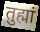
तुह्मां